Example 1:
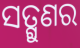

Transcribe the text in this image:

ସତ୍ଗୁଣର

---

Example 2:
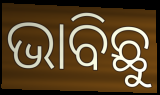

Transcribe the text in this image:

ଭାବିଛୁ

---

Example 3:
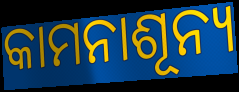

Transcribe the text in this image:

କାମନାଶୂନ୍ୟ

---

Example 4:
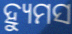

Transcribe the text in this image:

ହ୍ୟୁମସ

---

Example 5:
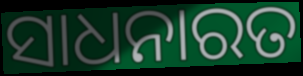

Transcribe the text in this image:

ସାଧନାରତ